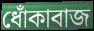
ধোঁকাবাজ